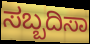
ಸಬ್ಬದಿಸಾ